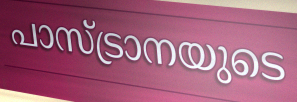
പാസ്ട്രാനയുടെ